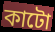
কাটো